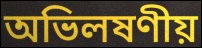
অভিলষণীয়